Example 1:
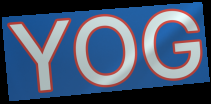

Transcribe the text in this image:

YOG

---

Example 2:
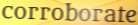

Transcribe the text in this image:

corroborate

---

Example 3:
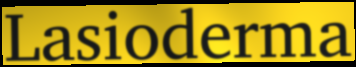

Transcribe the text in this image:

Lasioderma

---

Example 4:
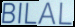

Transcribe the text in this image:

BILAL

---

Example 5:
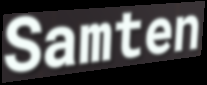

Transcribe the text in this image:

Samten